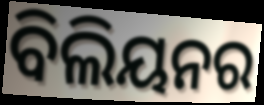
ବିଲିୟନର